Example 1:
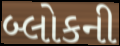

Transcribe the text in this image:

બ્લોકની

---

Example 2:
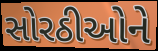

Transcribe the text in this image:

સોરઠીઓને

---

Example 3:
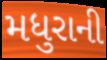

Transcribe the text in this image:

મધુરાની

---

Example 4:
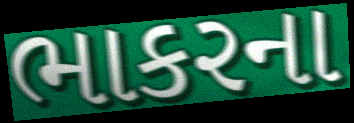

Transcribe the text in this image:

ભાકરના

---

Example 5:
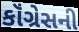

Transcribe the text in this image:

કૉંગ્રેસની